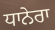
ਧਾਨੇਰਾ